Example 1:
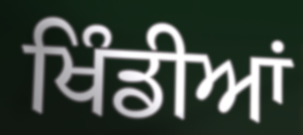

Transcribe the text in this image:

ਖਿੰਡੀਆਂ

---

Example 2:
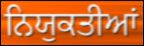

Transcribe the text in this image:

ਨਿਯੁਕਤੀਆਂ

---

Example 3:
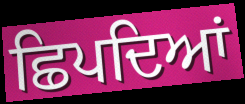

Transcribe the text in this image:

ਛਿਪਦਿਆਂ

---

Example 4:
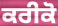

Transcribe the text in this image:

ਕਰੀਕੋ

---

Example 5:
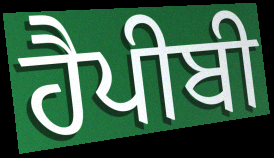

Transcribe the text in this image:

ਹੈਪੀਬੀ